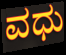
ವಧು